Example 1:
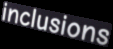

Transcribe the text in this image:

inclusions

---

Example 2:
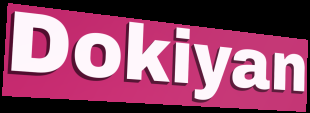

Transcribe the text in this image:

Dokiyan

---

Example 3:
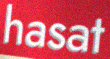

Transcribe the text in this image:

hasat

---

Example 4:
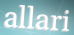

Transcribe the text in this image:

allari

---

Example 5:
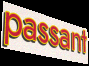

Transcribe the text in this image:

passant